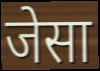
जेसा